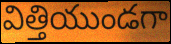
విత్తియుండగా